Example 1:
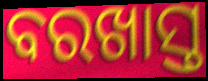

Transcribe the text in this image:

ବରଖାସ୍ତ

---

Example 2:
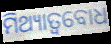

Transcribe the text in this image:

ମିଥ୍ୟାତ୍ୱବୋଧ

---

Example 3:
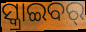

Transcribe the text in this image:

ସ୍କ୍ରାଇବର୍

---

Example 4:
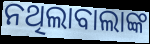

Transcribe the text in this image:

ନଥିଲାବାଲାଙ୍କ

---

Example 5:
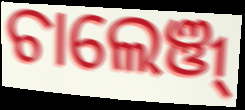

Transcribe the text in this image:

ଚାଲେଞ୍ଜ୍